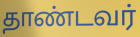
தாண்டவர்